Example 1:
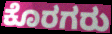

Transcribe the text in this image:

ಕೊರಗರು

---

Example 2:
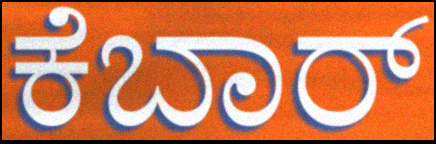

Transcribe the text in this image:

ಕೆಬಾರ್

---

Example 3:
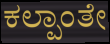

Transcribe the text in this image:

ಕಲ್ಪಾಂತೇ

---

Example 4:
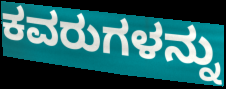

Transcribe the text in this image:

ಕವರುಗಳನ್ನು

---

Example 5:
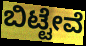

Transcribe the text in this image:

ಬಿಟ್ಟೇವೆ